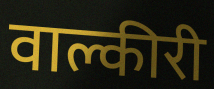
वाल्कीरी